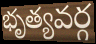
భృత్యవర్గ